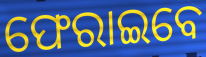
ଫେରାଇବେ